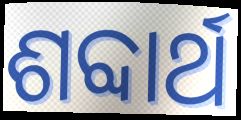
ଶବ୍ଦାର୍ଥ